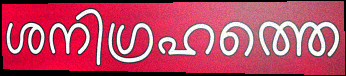
ശനിഗ്രഹത്തെ